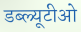
डब्ल्यूटीओ